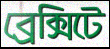
ব্রেক্সিটে